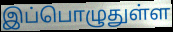
இப்பொழுதுள்ள